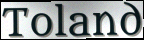
Toland